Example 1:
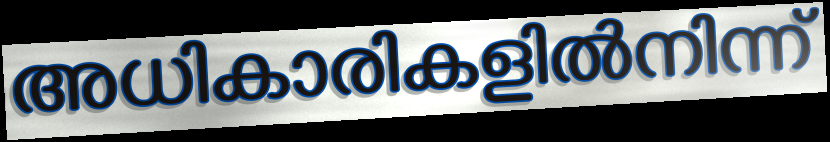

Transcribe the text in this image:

അധികാരികളിൽനിന്ന്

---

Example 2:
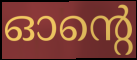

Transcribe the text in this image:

ഓന്റെ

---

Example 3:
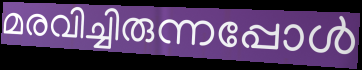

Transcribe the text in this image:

മരവിച്ചിരുന്നപ്പോൾ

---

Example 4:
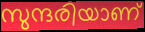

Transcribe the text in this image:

സുന്ദരിയാണ്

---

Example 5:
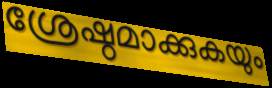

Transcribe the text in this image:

ശ്രേഷ്ഠമാക്കുകയും